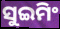
ସୁଇମିଂ